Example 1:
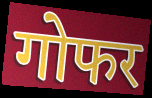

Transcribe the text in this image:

गोफर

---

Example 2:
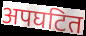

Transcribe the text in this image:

अपघटित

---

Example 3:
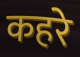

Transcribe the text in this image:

कहरे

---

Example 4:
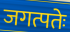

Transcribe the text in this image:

जगत्पतेः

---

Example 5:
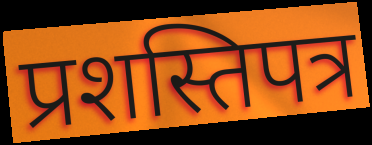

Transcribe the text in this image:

प्रशस्तिपत्र